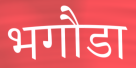
भगौडा